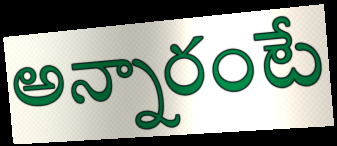
అన్నారంటే